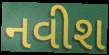
નવીશ